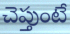
చెప్తుంటే